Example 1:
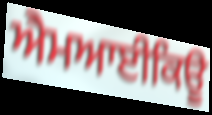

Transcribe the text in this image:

ਐਮਆਈਕਿਊ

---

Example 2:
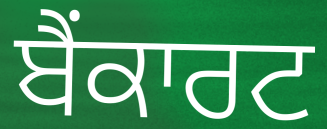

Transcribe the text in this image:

ਬੈਂਕਾਰਟ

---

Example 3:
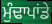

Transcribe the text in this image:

ਮੁੰਢਾਪਾਂਡੇ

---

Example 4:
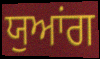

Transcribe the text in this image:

ਯੁਆਂਗ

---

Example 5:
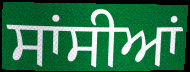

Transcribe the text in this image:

ਸਾਂਸੀਆਂ